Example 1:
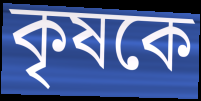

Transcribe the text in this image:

কৃষকে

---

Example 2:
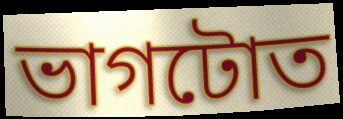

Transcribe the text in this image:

ভাগটোত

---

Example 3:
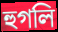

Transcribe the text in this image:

হুগলি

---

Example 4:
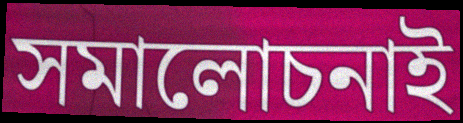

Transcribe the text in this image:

সমালোচনাই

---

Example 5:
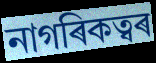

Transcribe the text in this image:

নাগৰিকত্বৰ